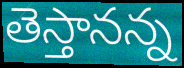
తెస్తానన్న